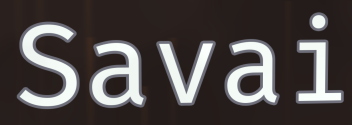
Savai